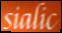
sialic